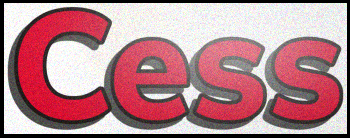
Cess